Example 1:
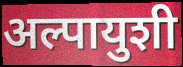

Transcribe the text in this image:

अल्पायुशी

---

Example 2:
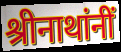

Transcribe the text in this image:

श्रीनाथांनीं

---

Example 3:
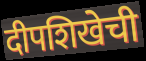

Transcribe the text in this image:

दीपशिखेची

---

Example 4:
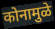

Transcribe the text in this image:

कोनामुळे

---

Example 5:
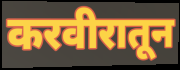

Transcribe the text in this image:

करवीरातून